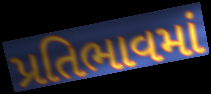
પ્રતિભાવમાં